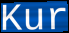
Kur